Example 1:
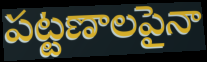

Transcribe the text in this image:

పట్టణాలపైనా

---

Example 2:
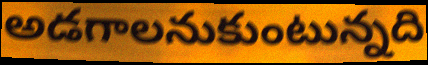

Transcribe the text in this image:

అడగాలనుకుంటున్నది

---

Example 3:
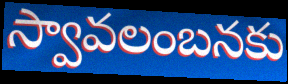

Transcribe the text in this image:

స్వావలంబనకు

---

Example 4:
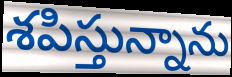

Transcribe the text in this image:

శపిస్తున్నాను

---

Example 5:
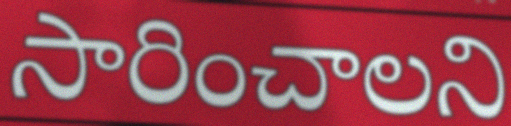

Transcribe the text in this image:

సారించాలని